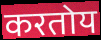
करतोय